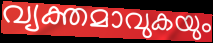
വ്യക്തമാവുകയും